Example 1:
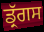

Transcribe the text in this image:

ਡ੍ਰੱਗਸ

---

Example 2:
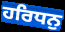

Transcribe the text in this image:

ਹਰਿਧਨੁ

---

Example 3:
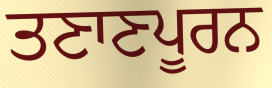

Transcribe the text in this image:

ਤਣਾਣਪੂਰਨ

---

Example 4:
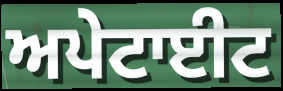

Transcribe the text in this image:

ਅਪੇਟਾਈਟ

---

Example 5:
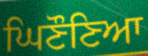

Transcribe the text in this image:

ਘਿਣੌਣਿਆ